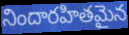
నిందారహితమైన